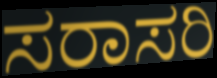
ಸರಾಸರಿ